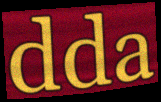
dda